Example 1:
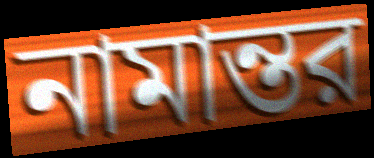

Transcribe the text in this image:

নামান্তর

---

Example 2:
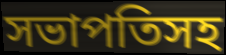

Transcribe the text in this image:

সভাপতিসহ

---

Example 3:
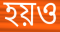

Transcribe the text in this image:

হয়ও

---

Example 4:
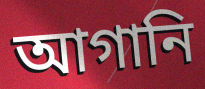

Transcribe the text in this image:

আগানি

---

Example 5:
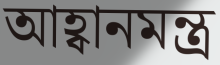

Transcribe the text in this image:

আহ্বানমন্ত্র